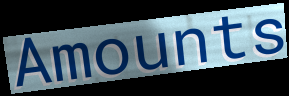
Amounts